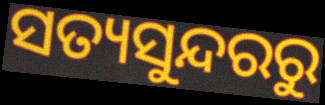
ସତ୍ୟସୁନ୍ଦରରୁ